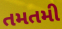
તમતમી